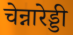
चेन्नारेड्डी